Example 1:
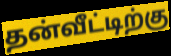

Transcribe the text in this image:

தன்வீட்டிற்கு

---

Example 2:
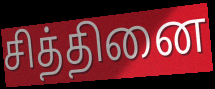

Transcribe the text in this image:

சித்தினை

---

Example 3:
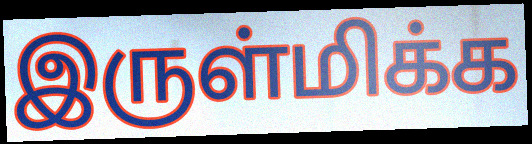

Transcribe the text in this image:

இருள்மிக்க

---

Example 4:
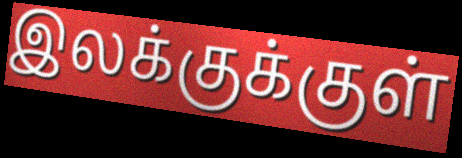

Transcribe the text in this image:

இலக்குக்குள்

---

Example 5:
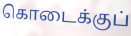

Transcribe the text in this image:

கொடைக்குப்